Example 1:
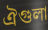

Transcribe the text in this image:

ঐগুলা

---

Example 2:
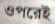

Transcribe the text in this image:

ওপরেই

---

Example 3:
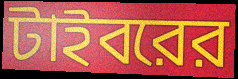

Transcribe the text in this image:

টাইবরের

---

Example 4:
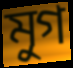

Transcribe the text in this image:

মুগ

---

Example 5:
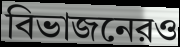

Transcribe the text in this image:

বিভাজনেরও